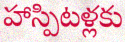
హాస్పిటళ్లకు